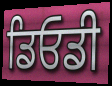
ਡਿਓਡੀ